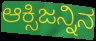
ಆಕ್ಸಿಜನ್ನಿನ